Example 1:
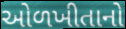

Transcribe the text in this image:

ઓળખીતાનો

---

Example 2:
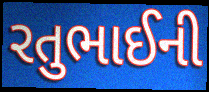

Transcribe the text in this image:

રતુભાઈની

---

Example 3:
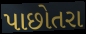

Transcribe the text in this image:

પાછોતરા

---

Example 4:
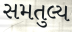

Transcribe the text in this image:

સમતુલ્ય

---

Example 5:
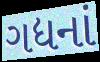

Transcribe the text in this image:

ગદ્યનાં